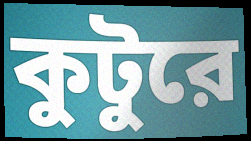
কুটুরে